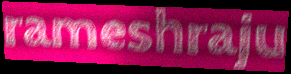
rameshraju